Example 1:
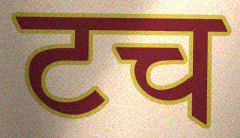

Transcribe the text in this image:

टच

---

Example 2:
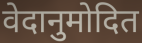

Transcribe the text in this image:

वेदानुमोदित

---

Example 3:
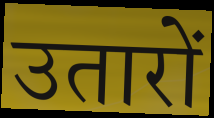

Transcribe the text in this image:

उतारों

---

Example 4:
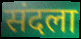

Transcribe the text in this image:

संदला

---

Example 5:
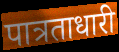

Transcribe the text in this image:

पात्रताधारी